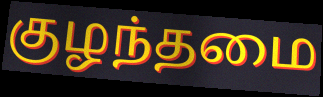
குழந்தமை